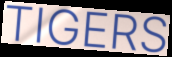
TIGERS